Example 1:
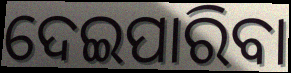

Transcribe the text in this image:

ଦେଇପାରିବା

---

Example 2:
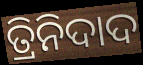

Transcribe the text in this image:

ତ୍ରିନିଦାଦ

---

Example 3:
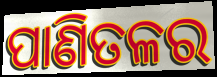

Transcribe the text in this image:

ପାଣିତଳର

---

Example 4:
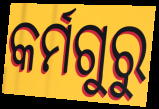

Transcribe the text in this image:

କର୍ମଗୁରୁ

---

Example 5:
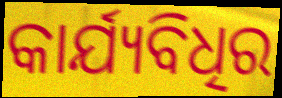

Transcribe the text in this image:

କାର୍ଯ୍ୟବିଧିର